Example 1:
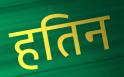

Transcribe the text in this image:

हतिन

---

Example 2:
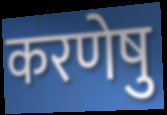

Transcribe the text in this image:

करणेषु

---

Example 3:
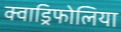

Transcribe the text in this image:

क्वाड्रिफोलिया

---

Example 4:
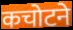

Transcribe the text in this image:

कचोटने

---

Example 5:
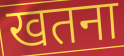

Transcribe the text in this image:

खतना